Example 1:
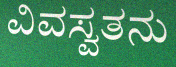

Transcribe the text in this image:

ವಿವಸ್ವತನು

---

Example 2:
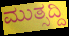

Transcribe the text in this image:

ಮುತ್ಸದ್ದಿ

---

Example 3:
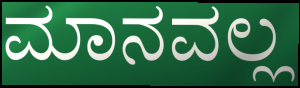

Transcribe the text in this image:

ಮಾನವಲ್ಲ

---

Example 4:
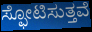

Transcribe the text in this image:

ಸ್ಫೋಟಿಸುತ್ತವೆ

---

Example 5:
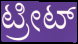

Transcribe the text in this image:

ಟ್ರೀಟ್